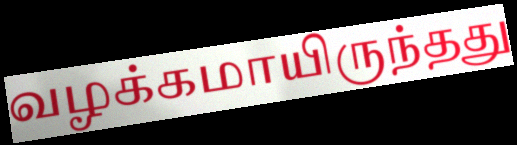
வழக்கமாயிருந்தது